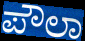
ಪೌಲಾ